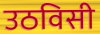
उठविसी